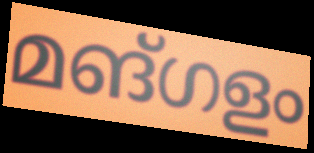
മങ്ഗളം